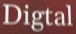
Digtal